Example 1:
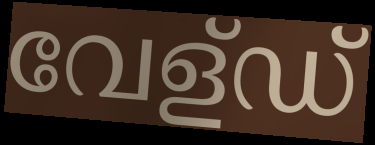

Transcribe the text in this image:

വേള്ഡ്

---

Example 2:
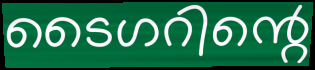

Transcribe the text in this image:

ടൈഗറിന്റെ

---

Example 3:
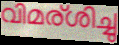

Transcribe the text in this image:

വിമര്ശിച്ചു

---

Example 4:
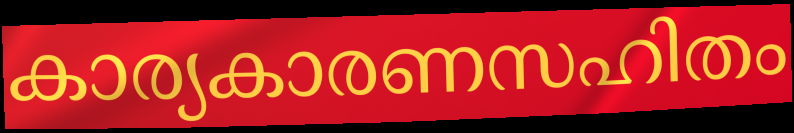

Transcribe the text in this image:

കാര്യകാരണസഹിതം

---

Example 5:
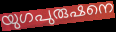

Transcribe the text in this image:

യുഗപുരുഷനെ